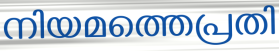
നിയമത്തെപ്രതി